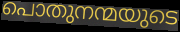
പൊതുനന്മയുടെ